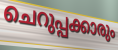
ചെറുപ്പക്കാരും